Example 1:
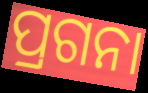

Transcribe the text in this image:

ପ୍ରଗନା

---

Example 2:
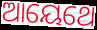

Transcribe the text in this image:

ଆୟେଥେ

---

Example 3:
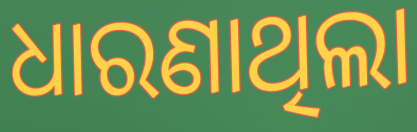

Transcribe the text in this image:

ଧାରଣାଥିଲା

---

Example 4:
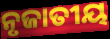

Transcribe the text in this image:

ନୃଜାତୀୟ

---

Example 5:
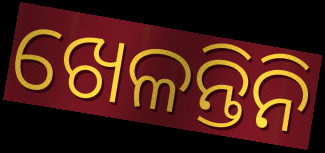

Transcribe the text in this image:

ଖେଳନ୍ତିନି